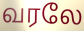
வரலே